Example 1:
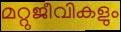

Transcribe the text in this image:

മറ്റുജീവികളും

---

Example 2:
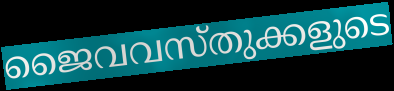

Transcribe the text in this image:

ജൈവവസ്തുക്കളുടെ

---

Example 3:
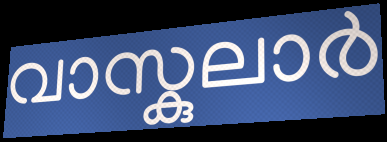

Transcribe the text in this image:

വാസ്കുലാർ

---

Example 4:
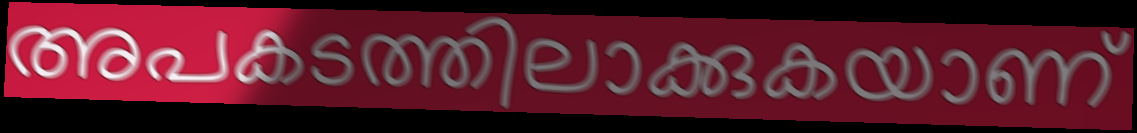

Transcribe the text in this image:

അപകടത്തിലാക്കുകയാണ്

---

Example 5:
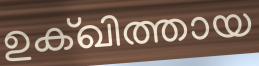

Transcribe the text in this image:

ഉക്ഖിത്തായ